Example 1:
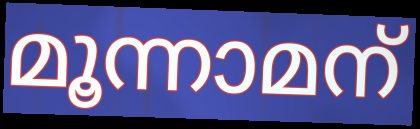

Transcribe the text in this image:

മൂന്നാമന്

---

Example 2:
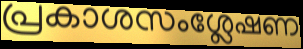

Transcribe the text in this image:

പ്രകാശസംശ്ലേഷണ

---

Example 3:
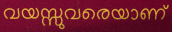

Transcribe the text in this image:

വയസ്സുവരെയാണ്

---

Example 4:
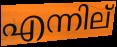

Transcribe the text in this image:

എന്നില്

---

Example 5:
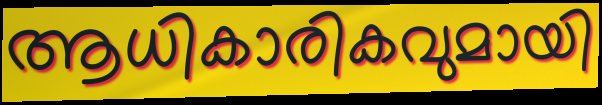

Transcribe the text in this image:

ആധികാരികവുമായി